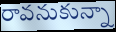
రావనుకున్నా